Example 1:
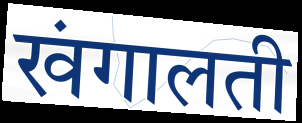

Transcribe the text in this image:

खंगालती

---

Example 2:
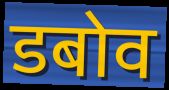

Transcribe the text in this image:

डबोव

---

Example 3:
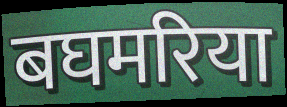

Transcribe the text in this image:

बघमरिया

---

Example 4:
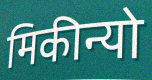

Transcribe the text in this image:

मिकीन्यो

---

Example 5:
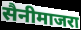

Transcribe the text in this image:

सैनीमाजरा